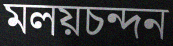
মলয়চন্দন